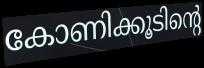
കോണിക്കൂടിന്റെ